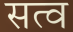
सत्व